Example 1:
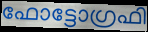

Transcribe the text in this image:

ഫോട്ടോഗ്രഫി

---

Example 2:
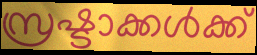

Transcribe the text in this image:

സ്രഷ്ടാക്കൾക്ക്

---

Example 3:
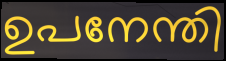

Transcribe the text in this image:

ഉപനേന്തി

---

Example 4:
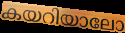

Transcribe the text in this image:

കയറിയാലോ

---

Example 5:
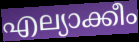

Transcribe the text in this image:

എല്യാക്കീം